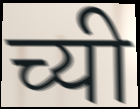
च्यी